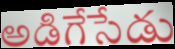
అడిగేసేడు